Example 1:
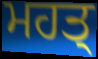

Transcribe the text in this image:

ਮਹਤ੍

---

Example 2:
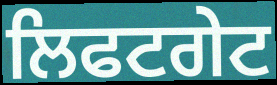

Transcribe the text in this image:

ਲਿਫਟਗੇਟ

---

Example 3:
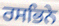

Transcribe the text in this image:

ਰਸਭਿਨੇ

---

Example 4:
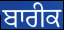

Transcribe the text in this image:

ਬਾਰੀਕ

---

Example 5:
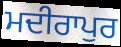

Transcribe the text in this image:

ਮਦੀਰਾਪੁਰ